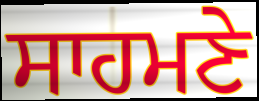
ਸਾਹਮਣੇ